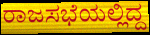
ರಾಜಸಭೆಯಲ್ಲಿದ್ದ